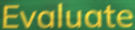
Evaluate